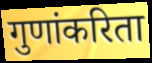
गुणांकरिता